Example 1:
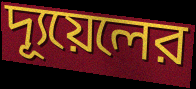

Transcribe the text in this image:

দ্যূয়েলের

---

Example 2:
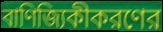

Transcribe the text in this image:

বাণিজ্যিকীকরণের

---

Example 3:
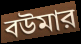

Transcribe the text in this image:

বউমার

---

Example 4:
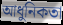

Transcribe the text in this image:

আধুনিকতা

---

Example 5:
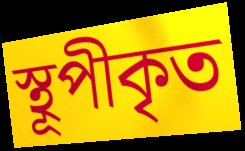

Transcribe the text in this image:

স্থূপীকৃত